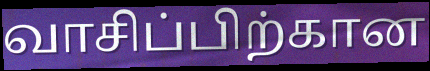
வாசிப்பிற்கான